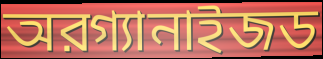
অরগ্যানাইজড